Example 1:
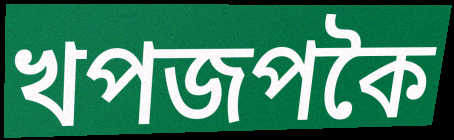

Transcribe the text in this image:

খপজপকৈ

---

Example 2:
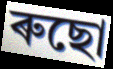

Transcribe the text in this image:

ৰুছো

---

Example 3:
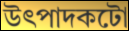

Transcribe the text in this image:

উৎপাদকটো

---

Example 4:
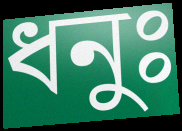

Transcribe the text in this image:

ধনুঃ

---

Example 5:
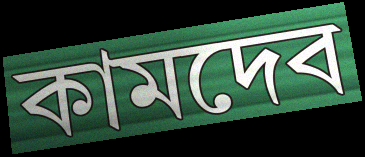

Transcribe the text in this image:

কামদেব